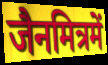
जैनमित्रमें